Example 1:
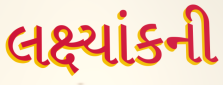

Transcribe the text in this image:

લક્ષ્યાંકની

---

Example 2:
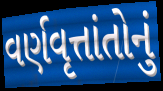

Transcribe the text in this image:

વર્ણવૃત્તાંતોનું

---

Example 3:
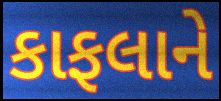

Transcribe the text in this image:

કાફલાને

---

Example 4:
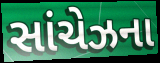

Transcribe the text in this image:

સાંચેઝના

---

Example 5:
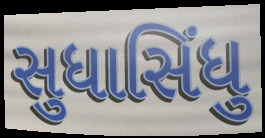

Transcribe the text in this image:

સુધાસિંધુ